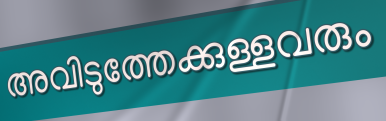
അവിടുത്തേക്കുള്ളവരും